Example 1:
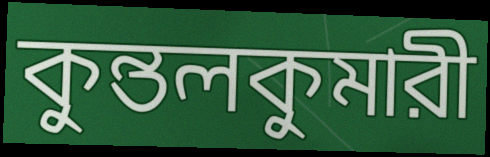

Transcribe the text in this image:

কুন্তলকুমারী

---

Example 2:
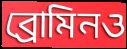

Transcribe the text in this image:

ব্রোমিনও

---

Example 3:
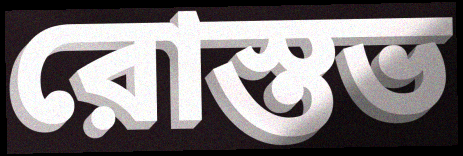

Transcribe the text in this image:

রোস্তভ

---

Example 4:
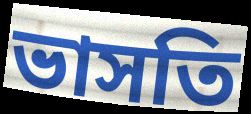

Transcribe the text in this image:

ভাসতি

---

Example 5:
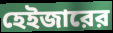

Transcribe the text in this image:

হেইজারের